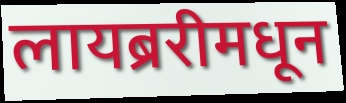
लायब्ररीमधून